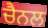
ਚੈਨਲ